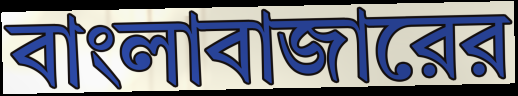
বাংলাবাজারের